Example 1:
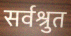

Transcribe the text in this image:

सर्वश्रुत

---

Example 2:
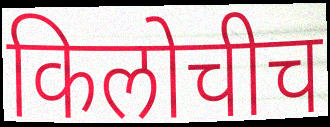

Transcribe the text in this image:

किलोचीच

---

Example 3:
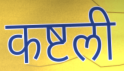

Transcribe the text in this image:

कष्टली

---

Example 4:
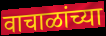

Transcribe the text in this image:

वाचाळांच्या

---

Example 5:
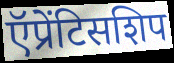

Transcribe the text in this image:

ऍप्रेंटिसशिप